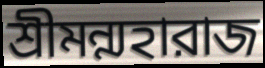
শ্রীমন্মহারাজ